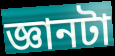
জ্ঞানটা